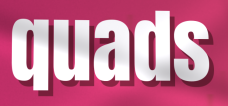
quads